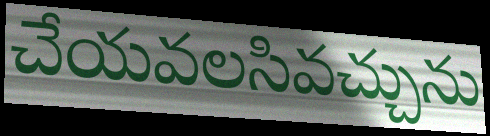
చేయవలసివచ్చును